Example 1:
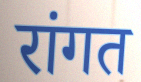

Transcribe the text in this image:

रांगत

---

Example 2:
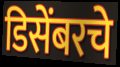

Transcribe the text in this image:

डिसेंबरचे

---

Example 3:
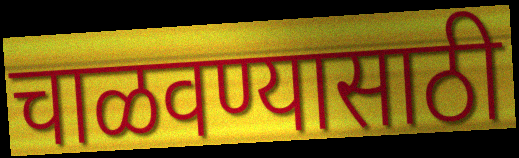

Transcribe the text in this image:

चाळवण्यासाठी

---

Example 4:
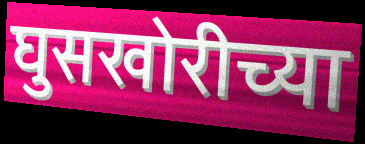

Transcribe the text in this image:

घुसखोरीच्या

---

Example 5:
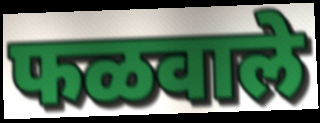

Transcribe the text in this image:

फळवाले